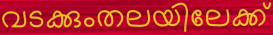
വടക്കുംതലയിലേക്ക്